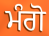
ਮੰਗੋ